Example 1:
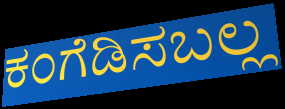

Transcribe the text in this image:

ಕಂಗೆಡಿಸಬಲ್ಲ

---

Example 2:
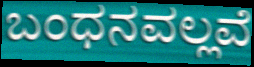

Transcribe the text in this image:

ಬಂಧನವಲ್ಲವೆ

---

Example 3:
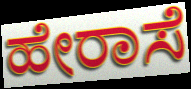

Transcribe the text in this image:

ಹೇರಾಸೆ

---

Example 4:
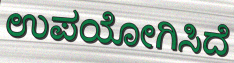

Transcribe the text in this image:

ಉಪಯೋಗಿಸಿದೆ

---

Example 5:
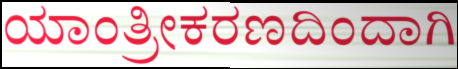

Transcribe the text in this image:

ಯಾಂತ್ರೀಕರಣದಿಂದಾಗಿ